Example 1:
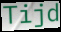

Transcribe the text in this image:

Tijd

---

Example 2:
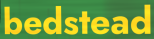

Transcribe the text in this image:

bedstead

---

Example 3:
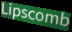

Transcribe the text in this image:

Lipscomb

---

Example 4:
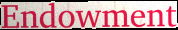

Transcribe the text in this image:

Endowment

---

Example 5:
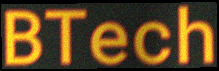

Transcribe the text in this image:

BTech